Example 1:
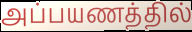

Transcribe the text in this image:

அப்பயணத்தில்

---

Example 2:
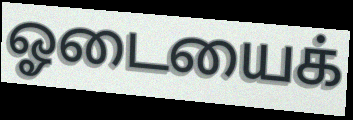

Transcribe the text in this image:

ஓடையைக்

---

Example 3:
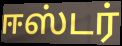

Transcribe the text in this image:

ஈஸ்டர்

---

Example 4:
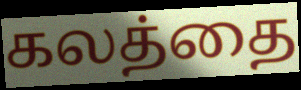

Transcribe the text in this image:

கலத்தை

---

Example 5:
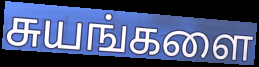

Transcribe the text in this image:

சுயங்களை